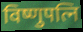
विष्णुपत्नि